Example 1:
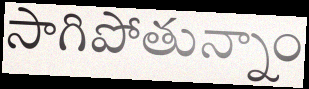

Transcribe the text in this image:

సాగిపోతున్నాం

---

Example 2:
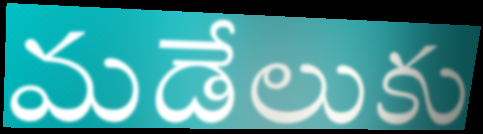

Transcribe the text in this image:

మడేలుకు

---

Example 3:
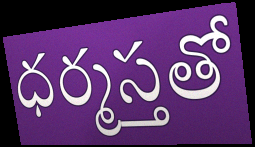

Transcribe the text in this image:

ధర్మస్తతో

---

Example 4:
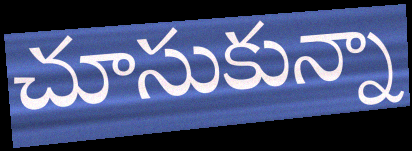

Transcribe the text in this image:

చూసుకున్నా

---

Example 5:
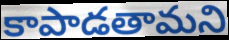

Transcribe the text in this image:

కాపాడతామని